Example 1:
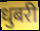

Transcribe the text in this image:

धुबरी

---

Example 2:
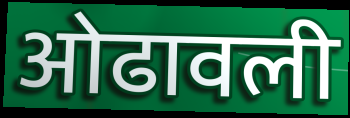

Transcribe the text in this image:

ओढावली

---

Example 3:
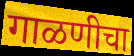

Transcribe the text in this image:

गाळणीचा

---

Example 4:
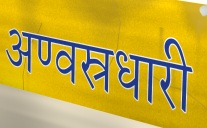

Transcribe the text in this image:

अण्वस्रधारी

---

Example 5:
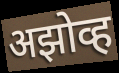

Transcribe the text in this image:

अझोव्ह